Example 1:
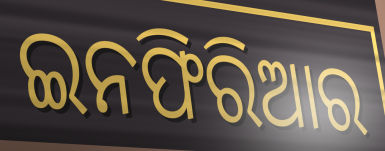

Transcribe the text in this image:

ଇନଫିରିଆର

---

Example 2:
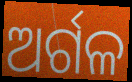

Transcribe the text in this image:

ଅର୍ଗଳ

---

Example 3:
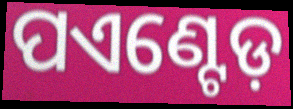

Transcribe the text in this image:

ପଏଣ୍ଟେଡ଼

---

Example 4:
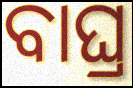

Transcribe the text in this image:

ବାଘ୍ର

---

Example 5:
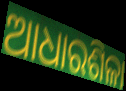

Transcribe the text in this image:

ଆଧାରଶିଳା